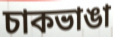
চাকভাঙা